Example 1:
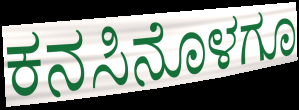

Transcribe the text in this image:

ಕನಸಿನೊಳಗೂ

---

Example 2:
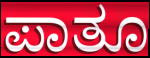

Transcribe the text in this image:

ಪಾತೂ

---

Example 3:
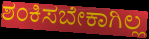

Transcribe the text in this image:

ಶಂಕಿಸಬೇಕಾಗಿಲ್ಲ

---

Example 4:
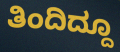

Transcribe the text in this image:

ತಿಂದಿದ್ದೂ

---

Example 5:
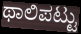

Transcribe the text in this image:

ಥಾಲಿಪಟ್ಟು